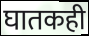
घातकही